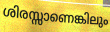
ശിരസ്സാണെങ്കിലും